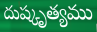
దుష్కృత్యము